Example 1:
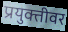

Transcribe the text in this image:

प्रयुक्तीवर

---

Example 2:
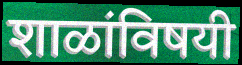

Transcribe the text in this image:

शाळांविषयी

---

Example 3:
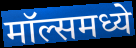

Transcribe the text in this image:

मॉल्समध्ये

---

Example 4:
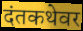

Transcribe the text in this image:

दंतकथेवर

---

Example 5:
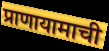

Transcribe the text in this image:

प्राणायामाची